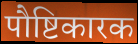
पौष्टिकारक